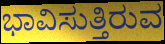
ಭಾವಿಸುತ್ತಿರುವ